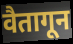
वैतागून